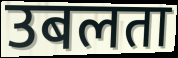
उबलता